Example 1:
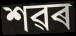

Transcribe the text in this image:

শৱৰ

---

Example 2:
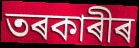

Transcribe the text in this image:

তৰকাৰীৰ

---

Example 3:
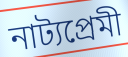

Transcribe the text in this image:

নাট্যপ্ৰেমী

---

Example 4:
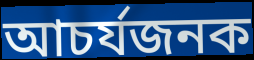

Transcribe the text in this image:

আচৰ্যজনক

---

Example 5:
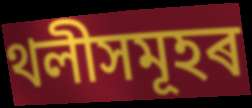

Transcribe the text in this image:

থলীসমূহৰ